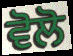
ਵੋਲੋ